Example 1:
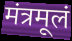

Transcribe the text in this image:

मंत्रमूलं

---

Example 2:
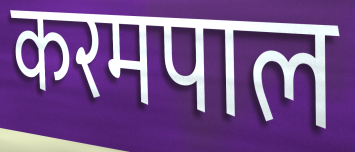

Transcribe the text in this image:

करमपाल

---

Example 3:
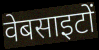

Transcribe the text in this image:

वेबसाइटों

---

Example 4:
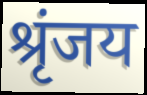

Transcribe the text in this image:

श्रृंजय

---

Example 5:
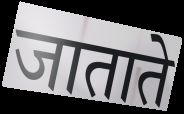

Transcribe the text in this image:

जाताते